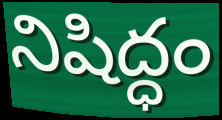
నిషిద్ధం